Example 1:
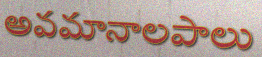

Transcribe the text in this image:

అవమానాలపాలు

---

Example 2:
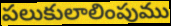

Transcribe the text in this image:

పలుకులాలింపుము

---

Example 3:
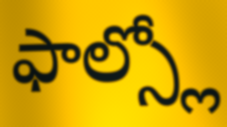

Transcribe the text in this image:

ఫాల్స్లో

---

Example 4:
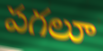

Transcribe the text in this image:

పగలూ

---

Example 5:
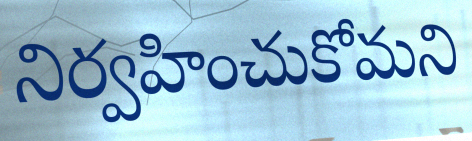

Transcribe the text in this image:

నిర్వహించుకోమని